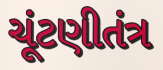
ચૂંટણીતંત્ર